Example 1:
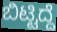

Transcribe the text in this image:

ಬಿಟ್ಟಿದ್ದೆ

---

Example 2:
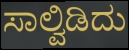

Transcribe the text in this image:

ಸಾಲ್ವಿಡಿದು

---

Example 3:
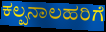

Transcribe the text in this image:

ಕಲ್ಪನಾಲಹರಿಗೆ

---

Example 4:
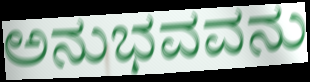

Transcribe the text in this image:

ಅನುಭವವನು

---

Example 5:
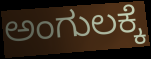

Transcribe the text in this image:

ಅಂಗುಲಕ್ಕೆ